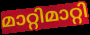
മാറ്റിമാറ്റി